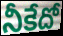
నీకేదో